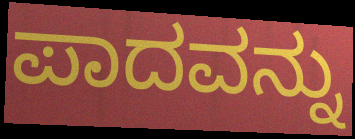
ಪಾದವನ್ನು